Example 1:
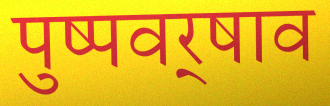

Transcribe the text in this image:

पुष्पवर्षाव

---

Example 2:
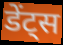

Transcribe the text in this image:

डेंट्स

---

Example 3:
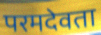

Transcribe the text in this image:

परमदेवता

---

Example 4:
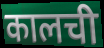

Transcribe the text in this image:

कालची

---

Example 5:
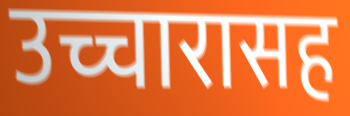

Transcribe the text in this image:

उच्चारासह